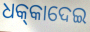
ଧକ୍‌କାଦେଇ